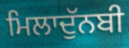
ਮਿਲਾਦੁੱਨਬੀ